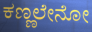
ಕಣ್ಣಲೇನೋ